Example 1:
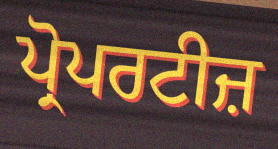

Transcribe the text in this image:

ਪ੍ਰੋਪਰਟੀਜ਼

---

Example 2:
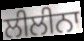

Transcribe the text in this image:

ਲੀਲੀਨਾ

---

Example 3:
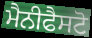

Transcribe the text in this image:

ਮੈਨੀਫੈਸਟੋ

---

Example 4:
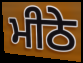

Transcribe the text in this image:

ਮੀਠੇ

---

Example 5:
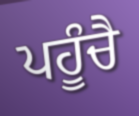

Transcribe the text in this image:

ਪਹੂੰਚੈ